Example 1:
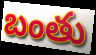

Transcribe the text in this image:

బంతు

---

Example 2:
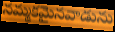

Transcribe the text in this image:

నమ్మకమైనవాడును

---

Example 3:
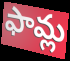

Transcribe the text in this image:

ఫామ్ల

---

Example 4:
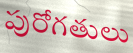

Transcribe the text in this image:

పురోగతులు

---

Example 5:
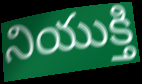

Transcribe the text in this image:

నియుక్తి